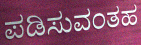
ಪಡಿಸುವಂತಹ